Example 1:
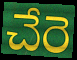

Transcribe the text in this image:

చేరె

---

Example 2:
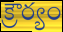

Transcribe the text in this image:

క్రౌర్యం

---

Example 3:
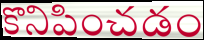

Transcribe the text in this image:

కొనిపించడం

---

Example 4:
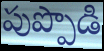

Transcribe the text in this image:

పుప్పొడి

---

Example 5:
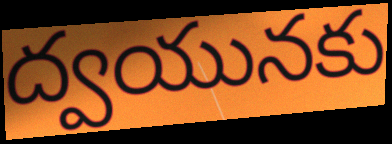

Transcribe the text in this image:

ద్వయునకు